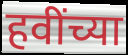
हवींच्या